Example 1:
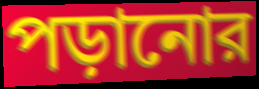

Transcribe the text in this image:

পড়ানোর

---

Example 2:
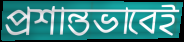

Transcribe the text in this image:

প্রশান্তভাবেই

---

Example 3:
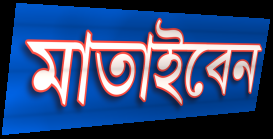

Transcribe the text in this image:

মাতাইবেন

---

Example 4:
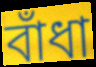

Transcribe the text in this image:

বাঁধা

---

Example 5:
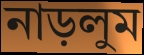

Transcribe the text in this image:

নাড়লুম